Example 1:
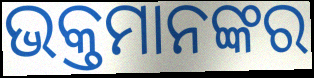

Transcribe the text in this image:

ଭକ୍ତମାନଙ୍କର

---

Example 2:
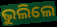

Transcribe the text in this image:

ଭୁଲିଲେ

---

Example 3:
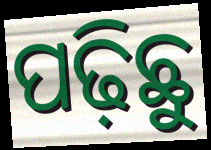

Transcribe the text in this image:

ପଢ଼ିଛୁ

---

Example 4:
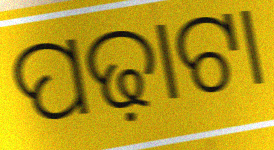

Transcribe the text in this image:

ପଢ଼ାଟା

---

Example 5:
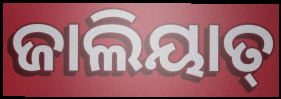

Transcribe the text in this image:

ଜାଲିୟାତ୍